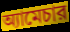
অ্যামেচার